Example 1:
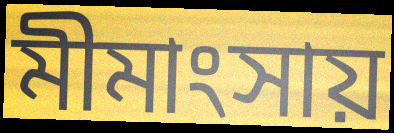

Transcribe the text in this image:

মীমাংসায়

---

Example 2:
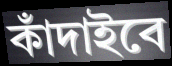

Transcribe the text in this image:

কাঁদাইবে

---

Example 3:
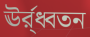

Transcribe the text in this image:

ঊর্র্ধ্বতন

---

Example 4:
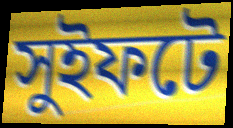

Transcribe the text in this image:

সুইফটে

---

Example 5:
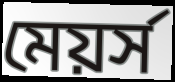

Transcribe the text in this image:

মেয়র্স